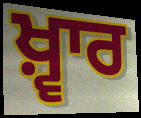
ਖ਼੍ਵਾਰ